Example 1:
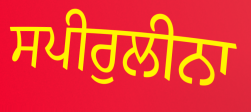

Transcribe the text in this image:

ਸਪੀਰੁਲੀਨਾ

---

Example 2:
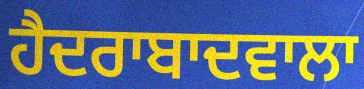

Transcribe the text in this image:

ਹੈਦਰਾਬਾਦਵਾਲਾ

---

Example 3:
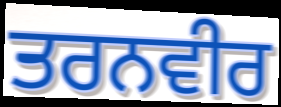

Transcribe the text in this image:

ਤਰਨਵੀਰ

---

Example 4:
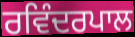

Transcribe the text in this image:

ਰਵਿੰਦਰਪਾਲ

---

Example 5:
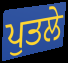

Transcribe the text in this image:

ਪੁਤਲੇ